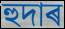
হুদাৰ